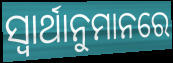
ସ୍ୱାର୍ଥାନୁମାନରେ